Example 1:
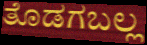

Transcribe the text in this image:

ತೊಡಗಬಲ್ಲ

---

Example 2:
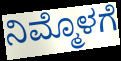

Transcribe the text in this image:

ನಿಮ್ಮೊಳಗೆ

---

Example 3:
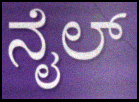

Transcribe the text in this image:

ನೈಲ್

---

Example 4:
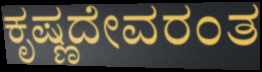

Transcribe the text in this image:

ಕೃಷ್ಣದೇವರಂತ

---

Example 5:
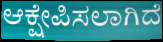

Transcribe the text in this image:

ಆಕ್ಷೇಪಿಸಲಾಗಿದೆ